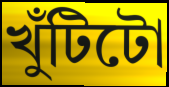
খুঁটিটো